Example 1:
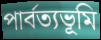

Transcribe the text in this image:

পার্বত্যভূমি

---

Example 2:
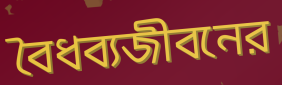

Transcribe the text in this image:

বৈধব্যজীবনের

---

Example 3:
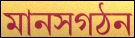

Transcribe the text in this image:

মানসগঠন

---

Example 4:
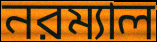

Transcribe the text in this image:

নরম্যাল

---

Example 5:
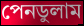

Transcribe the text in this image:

পেনডুলাম